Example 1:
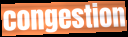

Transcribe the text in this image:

congestion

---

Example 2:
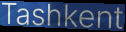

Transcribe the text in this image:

Tashkent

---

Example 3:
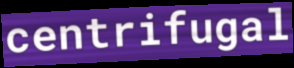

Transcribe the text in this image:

centrifugal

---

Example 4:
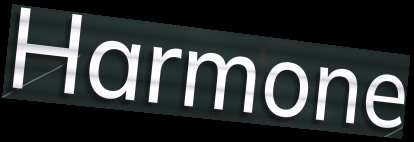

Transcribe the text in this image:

Harmone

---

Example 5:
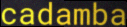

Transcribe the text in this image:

cadamba